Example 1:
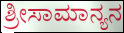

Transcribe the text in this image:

ಶ್ರೀಸಾಮಾನ್ಯನ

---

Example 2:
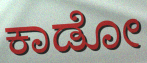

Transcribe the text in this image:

ಕಾಡೋ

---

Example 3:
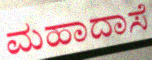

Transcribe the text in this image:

ಮಹಾದಾಸೆ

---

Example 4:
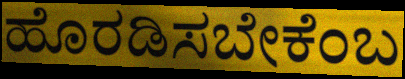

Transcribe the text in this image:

ಹೊರಡಿಸಬೇಕೆಂಬ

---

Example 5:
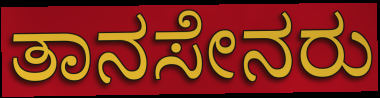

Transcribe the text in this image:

ತಾನಸೇನರು